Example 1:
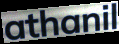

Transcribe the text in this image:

athanil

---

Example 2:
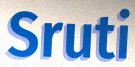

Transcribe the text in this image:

Sruti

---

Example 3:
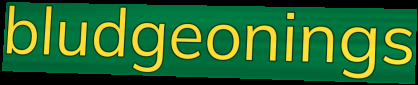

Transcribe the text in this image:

bludgeonings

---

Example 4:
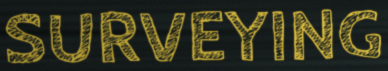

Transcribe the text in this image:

SURVEYING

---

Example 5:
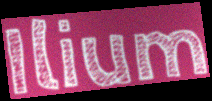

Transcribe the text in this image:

Ilium